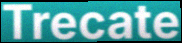
Trecate